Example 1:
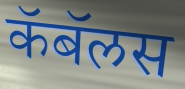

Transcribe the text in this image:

कॅबॅलस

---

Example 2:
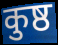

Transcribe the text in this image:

कुष्ठ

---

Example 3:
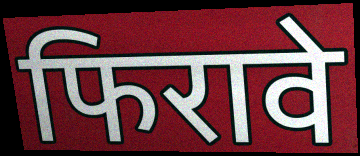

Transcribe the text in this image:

फिरावे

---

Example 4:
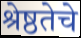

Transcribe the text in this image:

श्रेष्ठतेचे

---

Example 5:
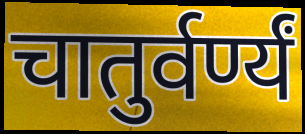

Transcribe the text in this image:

चातुर्वर्ण्यं